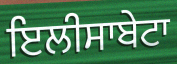
ਇਲੀਸਾਬੇਟਾ